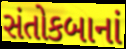
સંતોકબાનાં